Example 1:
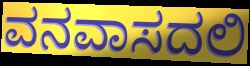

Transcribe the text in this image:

ವನವಾಸದಲಿ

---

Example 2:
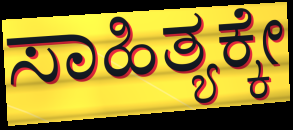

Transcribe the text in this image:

ಸಾಹಿತ್ಯಕ್ಕೇ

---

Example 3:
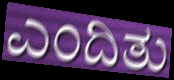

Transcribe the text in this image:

ಎಂದಿತು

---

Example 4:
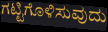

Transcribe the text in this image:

ಗಟ್ಟಿಗೊಳಿಸುವುದು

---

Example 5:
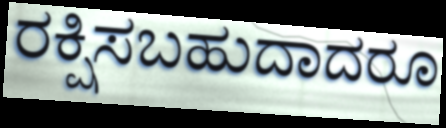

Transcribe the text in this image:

ರಕ್ಷಿಸಬಹುದಾದರೂ